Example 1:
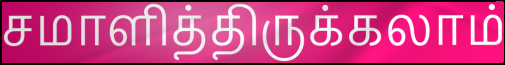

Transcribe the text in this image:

சமாளித்திருக்கலாம்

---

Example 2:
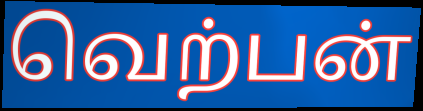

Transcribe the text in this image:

வெற்பன்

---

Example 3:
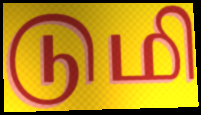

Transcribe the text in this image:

டுமி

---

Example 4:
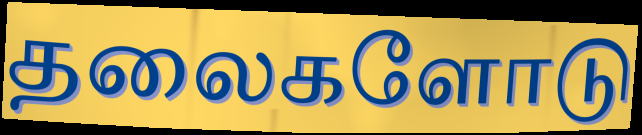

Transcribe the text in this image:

தலைகளோடு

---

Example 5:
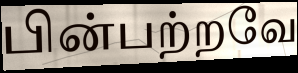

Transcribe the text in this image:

பின்பற்றவே